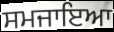
ਸਮਜਾਇਆ